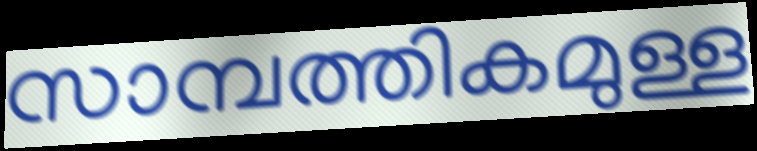
സാമ്പത്തികമുള്ള